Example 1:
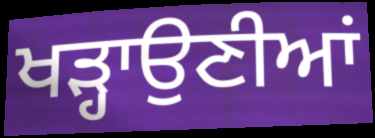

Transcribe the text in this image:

ਖੜ੍ਹਾਉਣੀਆਂ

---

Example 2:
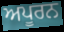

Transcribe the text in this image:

ਅਪੂਰਨ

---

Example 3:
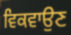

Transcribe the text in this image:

ਵਿਕਵਾਉਣ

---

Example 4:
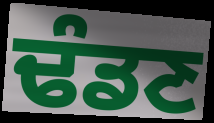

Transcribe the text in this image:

ਢੰਡਣ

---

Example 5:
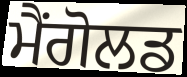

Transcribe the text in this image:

ਮੈਂਗੋਲਡ